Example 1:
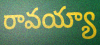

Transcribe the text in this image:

రావయ్యా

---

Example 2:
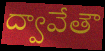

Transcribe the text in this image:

ద్వావేతౌ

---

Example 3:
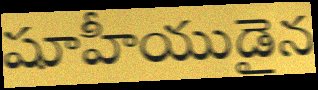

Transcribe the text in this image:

షూహీయుడైన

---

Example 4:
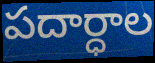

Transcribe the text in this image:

పదార్ధాల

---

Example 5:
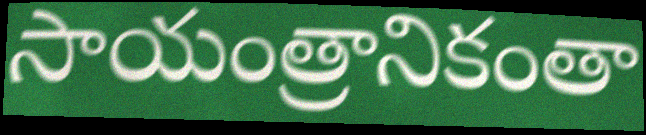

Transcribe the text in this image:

సాయంత్రానికంతా